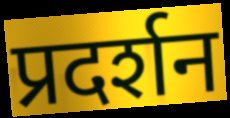
प्रदर्शन